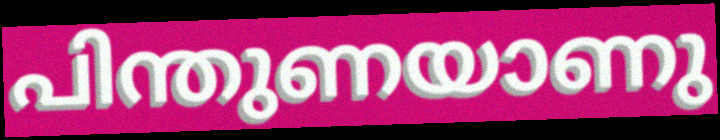
പിന്തുണയാണു